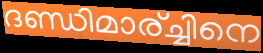
ദണ്ഡിമാര്ച്ചിനെ